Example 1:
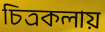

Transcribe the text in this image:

চিত্রকলায়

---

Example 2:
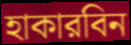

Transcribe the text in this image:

হাকারবিন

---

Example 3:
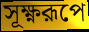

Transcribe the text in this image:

সূক্ষ্ণরূপে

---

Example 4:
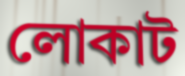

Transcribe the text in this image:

লোকাট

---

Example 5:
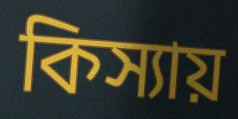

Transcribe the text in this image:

কিস্যায়